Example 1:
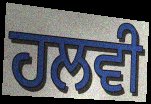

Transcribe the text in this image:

ਹਲਵੀ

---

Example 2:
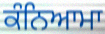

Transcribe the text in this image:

ਕੰਨਿਆਮਾ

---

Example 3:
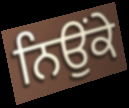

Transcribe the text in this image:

ਨਿਉਂਕੇ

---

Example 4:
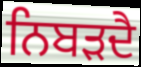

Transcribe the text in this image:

ਨਿਬੜਦੈ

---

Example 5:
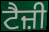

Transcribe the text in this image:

ਟੈਜ਼ੀ